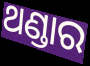
ଥଣ୍ଡାର